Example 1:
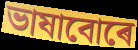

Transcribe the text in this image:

ভাষাবোৰে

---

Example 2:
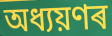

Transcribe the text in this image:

অধ্যয়ণৰ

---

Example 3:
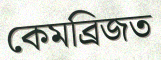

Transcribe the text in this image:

কেমব্ৰিজত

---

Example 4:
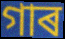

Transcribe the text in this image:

গাৰ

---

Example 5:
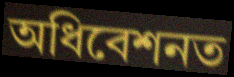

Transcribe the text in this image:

অধিবেশনত